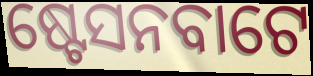
ଷ୍ଟେସନବାଟେ